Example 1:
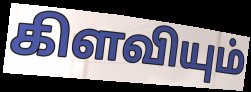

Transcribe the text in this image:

கிளவியும்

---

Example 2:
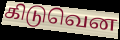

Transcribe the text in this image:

கிடுவென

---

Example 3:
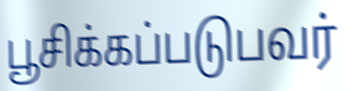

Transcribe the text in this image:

பூசிக்கப்படுபவர்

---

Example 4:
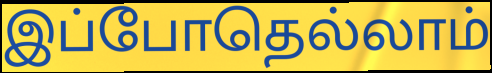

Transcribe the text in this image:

இப்போதெல்லாம்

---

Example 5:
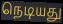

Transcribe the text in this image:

நெடியது